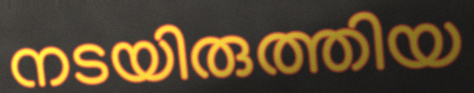
നടയിരുത്തിയ